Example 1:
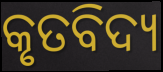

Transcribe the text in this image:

କୃତବିଦ୍ଯ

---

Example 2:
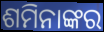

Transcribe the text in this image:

ଶମିନାଙ୍କର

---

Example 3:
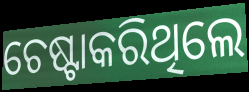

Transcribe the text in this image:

ଚେଷ୍ଟାକରିଥିଲେ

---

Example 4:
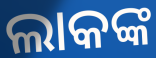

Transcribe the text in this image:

ଲାକଙ୍କ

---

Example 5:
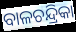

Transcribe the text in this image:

ବାଳଚନ୍ଦ୍ରିକା